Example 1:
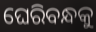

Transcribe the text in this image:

ଘେରିବନ୍ଧକୁ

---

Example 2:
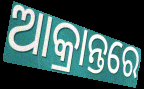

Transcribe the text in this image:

ଆକ୍ରାନ୍ତରେ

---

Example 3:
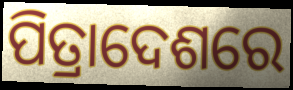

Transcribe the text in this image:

ପିତ୍ରାଦେଶରେ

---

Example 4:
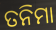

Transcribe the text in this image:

ତନିମା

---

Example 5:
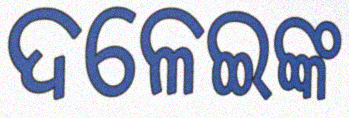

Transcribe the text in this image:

ଦଳେଇଙ୍କ